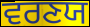
ਵਰਣਯ